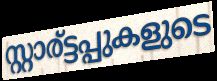
സ്റ്റാര്ട്ടപ്പുകളുടെ